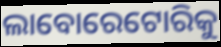
ଲାବୋରେଟୋରିକୁ